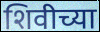
शिवीच्या